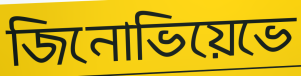
জিনোভিয়েভে